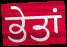
ਭੇਤਾਂ